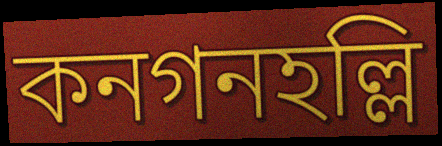
কনগনহল্লি